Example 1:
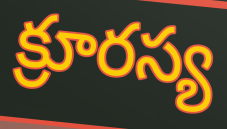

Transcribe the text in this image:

క్రూరస్య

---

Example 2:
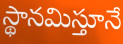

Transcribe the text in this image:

స్థానమిస్తూనే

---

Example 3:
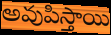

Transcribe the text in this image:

అవుపిస్తాయి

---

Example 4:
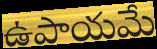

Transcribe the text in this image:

ఉపాయమే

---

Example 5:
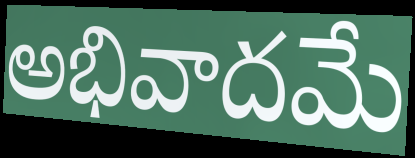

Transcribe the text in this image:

అభివాదమే